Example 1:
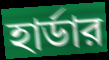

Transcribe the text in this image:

হার্ডার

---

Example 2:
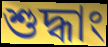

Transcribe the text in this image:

শুদ্ধাং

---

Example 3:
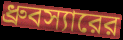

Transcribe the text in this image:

ধ্রুবস্যারের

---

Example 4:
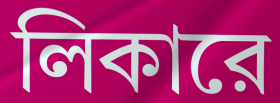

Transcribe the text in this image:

লিকারে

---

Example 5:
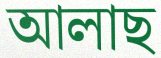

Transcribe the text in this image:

আলাছ